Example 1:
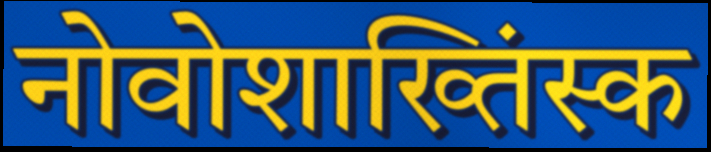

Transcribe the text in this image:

नोवोशाख्तिंस्क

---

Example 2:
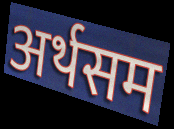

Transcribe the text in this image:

अर्थसम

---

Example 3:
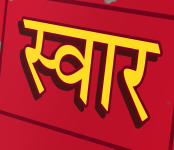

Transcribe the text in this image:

स्‍वार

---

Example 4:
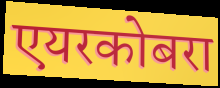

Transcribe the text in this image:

एयरकोबरा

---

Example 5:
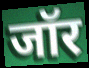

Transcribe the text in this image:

जॉर